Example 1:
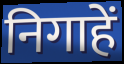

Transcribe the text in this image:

निगाहें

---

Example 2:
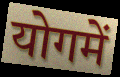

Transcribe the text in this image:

योगमें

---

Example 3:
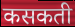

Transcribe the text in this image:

कसकती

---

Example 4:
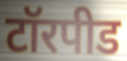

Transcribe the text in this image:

टॉरपीड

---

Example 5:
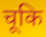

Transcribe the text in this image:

चूकि